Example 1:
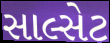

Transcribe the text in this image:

સાલ્સેટ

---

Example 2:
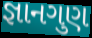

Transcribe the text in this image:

જ્ઞાનગુણ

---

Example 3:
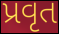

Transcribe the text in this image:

પ્રવૃત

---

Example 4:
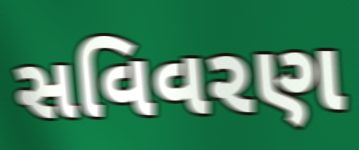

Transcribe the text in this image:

સવિવરણ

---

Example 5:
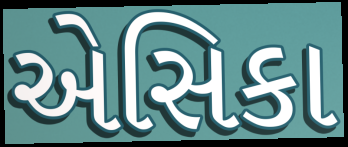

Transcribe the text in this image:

એસિકા